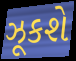
ઝૂકશે